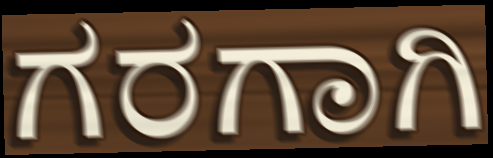
ಗರಗಾಗಿ